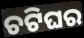
ଚଟିଘର